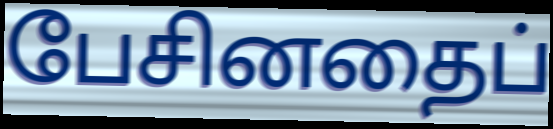
பேசினதைப்